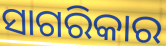
ସାଗରିକାର